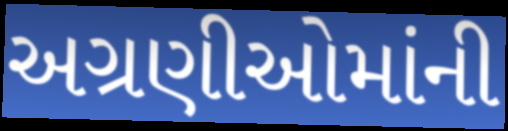
અગ્રણીઓમાંની